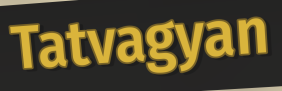
Tatvagyan